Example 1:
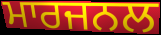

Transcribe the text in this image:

ਮਾਰਜਨਲ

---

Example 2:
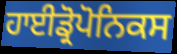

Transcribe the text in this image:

ਹਾਈਡ੍ਰੋਪੋਨਿਕਸ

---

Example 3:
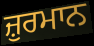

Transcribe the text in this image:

ਜ਼ੁਰਮਾਨ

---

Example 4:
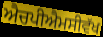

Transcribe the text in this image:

ਐਚਪੀਐਮਸੀਵੱਖ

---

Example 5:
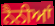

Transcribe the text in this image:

ਨੈਨੀਆਂ